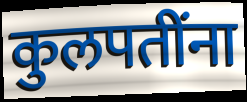
कुलपतींना